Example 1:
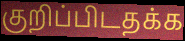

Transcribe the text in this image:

குறிப்பிடதக்க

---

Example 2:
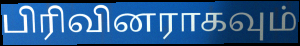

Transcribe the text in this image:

பிரிவினராகவும்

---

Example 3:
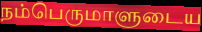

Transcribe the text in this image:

நம்பெருமாளுடைய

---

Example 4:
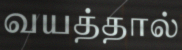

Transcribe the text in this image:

வயத்தால்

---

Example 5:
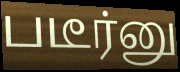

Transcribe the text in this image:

படீர்னு